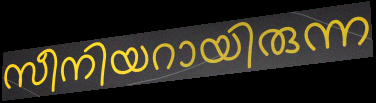
സീനിയറായിരുന്ന